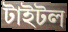
টাইটল